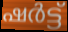
ഷർട്ട്